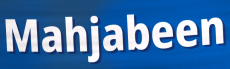
Mahjabeen